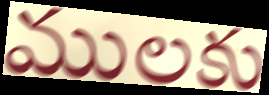
ములకు